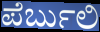
ಪೆರ್ಬುಲಿ